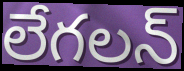
లేగలన్